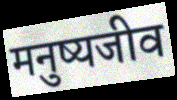
मनुष्यजीव